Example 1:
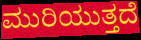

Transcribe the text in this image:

ಮುರಿಯುತ್ತದೆ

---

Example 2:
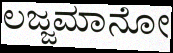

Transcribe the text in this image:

ಲಜ್ಜಮಾನೋ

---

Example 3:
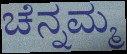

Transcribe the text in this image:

ಚೆನ್ನಮ್ಮ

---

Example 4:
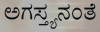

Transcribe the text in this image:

ಅಗಸ್ತ್ಯನಂತೆ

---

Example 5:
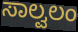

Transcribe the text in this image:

ಸಾಲ್ವಲಂ